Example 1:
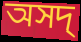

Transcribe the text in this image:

অসদ্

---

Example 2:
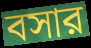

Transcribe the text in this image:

বসার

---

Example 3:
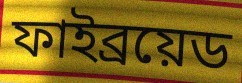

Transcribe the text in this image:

ফাইব্রয়েড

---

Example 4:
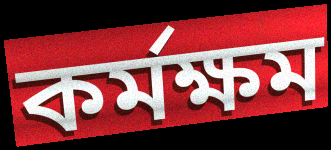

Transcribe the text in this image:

কর্মক্ষম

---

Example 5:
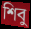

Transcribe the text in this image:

শিবু